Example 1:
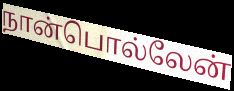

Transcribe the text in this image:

நான்பொல்லேன்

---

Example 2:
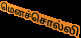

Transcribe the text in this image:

மெனச்சொல்லி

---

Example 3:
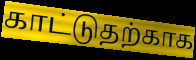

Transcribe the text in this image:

காட்டுதற்காக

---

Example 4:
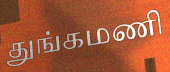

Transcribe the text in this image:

துங்கமணி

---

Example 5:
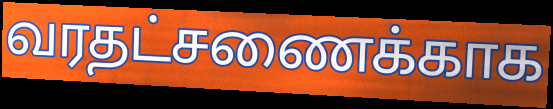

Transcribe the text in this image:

வரதட்சணைக்காக